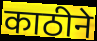
काठीने